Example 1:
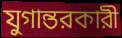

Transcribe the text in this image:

যুগান্তরকারী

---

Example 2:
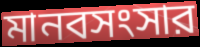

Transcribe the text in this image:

মানবসংসার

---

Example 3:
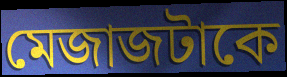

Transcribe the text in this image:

মেজাজটাকে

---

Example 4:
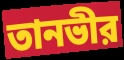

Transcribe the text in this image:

তানভীর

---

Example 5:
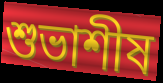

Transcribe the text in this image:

শুভাশীষ